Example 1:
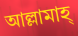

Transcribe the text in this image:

আল্লামাহ্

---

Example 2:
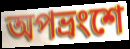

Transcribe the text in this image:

অপভ্রংশে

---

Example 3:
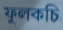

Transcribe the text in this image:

ফুলকচি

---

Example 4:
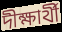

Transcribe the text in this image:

দীক্ষার্থী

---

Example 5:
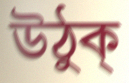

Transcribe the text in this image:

উঠুক্